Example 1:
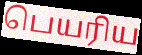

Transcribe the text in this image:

பெயரிய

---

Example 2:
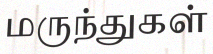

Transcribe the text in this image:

மருந்துகள்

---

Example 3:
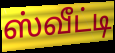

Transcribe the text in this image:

ஸ்வீட்டி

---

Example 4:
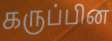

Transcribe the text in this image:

கருப்பின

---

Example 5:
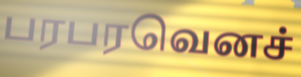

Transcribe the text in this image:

பரபரவெனச்